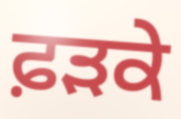
ਫ਼ਡ਼ਕੇ